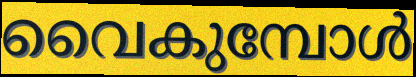
വൈകുമ്പോൾ